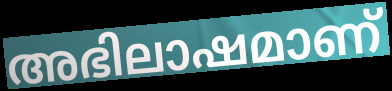
അഭിലാഷമാണ്